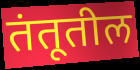
तंतूतील